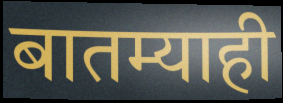
बातम्याही